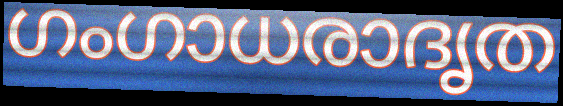
ഗംഗാധരാദൃത